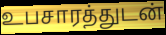
உபசாரத்துடன்